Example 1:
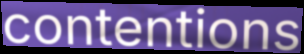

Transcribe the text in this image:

contentions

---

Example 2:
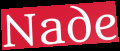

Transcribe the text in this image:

Nade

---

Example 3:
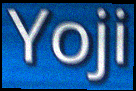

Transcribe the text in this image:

Yoji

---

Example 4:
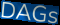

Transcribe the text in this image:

DAGs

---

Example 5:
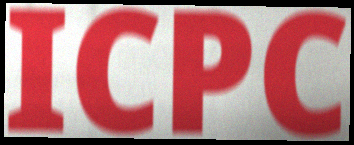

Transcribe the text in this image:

ICPC